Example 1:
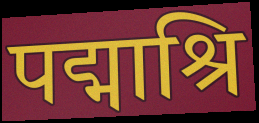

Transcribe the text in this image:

पद्माश्रि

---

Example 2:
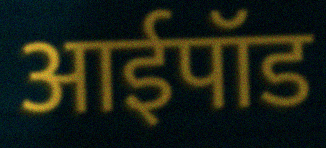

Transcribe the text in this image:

आईपॉड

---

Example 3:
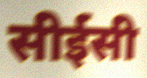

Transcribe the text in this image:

सीईसी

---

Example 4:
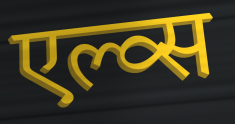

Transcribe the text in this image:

एल्व्स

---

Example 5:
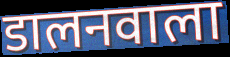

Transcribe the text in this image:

डालनवाला